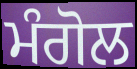
ਮੰਗੋਲ